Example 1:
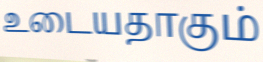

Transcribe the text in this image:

உடையதாகும்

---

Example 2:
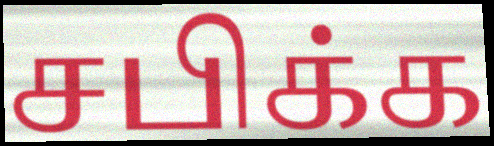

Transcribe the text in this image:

சபிக்க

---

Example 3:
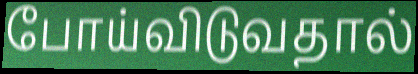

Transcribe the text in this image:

போய்விடுவதால்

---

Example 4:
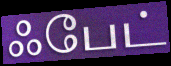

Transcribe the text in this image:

ஃபேட்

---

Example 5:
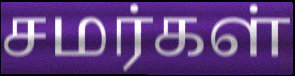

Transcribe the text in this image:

சமர்கள்